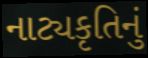
નાટ્યકૃતિનું